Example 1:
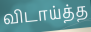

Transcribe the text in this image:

விடாய்த்த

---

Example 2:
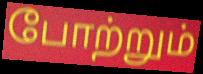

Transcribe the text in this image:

போற்றும்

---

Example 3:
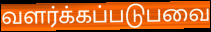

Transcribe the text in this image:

வளர்க்கப்படுபவை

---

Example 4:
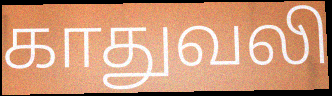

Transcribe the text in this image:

காதுவலி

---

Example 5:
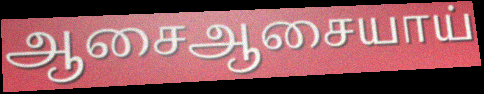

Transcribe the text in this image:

ஆசைஆசையாய்